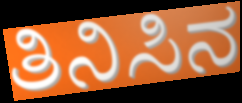
ತಿನಿಸಿನ